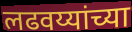
लढवय्यांच्या